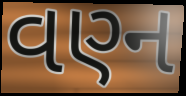
વણ્ન